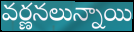
వర్ణనలున్నాయి